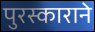
पुरस्काराने